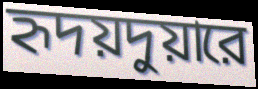
হৃদয়দুয়ারে